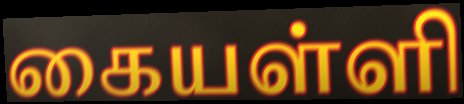
கையள்ளி